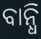
ବାନ୍ଧି